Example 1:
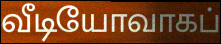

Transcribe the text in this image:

வீடியோவாகப்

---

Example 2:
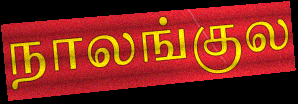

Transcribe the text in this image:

நாலங்குல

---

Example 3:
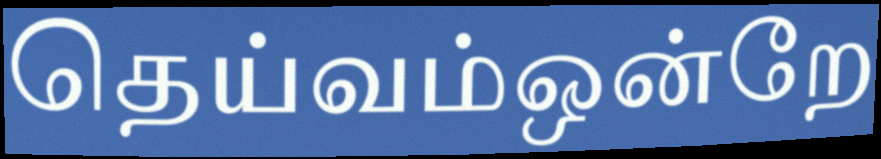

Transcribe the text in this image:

தெய்வம்ஒன்றே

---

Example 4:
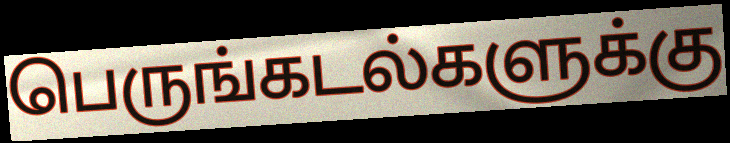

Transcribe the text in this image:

பெருங்கடல்களுக்கு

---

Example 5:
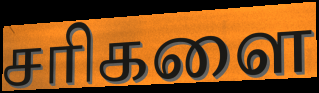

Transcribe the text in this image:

சரிகளை